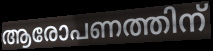
ആരോപണത്തിന്